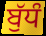
ਬੁੱਧੰ